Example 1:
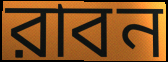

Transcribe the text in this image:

রাবন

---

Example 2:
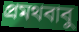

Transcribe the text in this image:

প্রমথবাবু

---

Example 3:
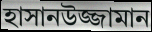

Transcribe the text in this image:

হাসানউজ্জামান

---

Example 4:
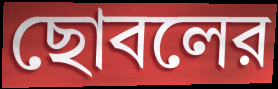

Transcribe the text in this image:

ছোবলের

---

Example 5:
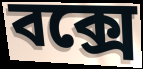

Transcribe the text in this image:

বক্সে